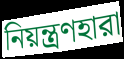
নিয়ন্ত্রণহারা